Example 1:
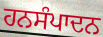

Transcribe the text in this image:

ਹਨਸੰਪਾਦਨ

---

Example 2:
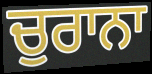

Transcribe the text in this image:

ਚੁਰਾਨਾ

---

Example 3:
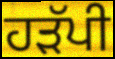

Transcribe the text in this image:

ਹੜੱਪੀ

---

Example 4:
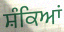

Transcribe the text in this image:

ਸ਼ੰਕਿਆਂ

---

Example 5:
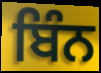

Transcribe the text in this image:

ਬਿੰਨ